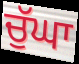
ਚੁੱਘਾ